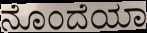
ನೊಂದೆಯಾ